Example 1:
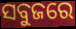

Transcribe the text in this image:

ସବୁଜରେ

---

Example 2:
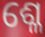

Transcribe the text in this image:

ଶ୍ଳେ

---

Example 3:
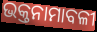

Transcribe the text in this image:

ଭକ୍ତନାମାବଳୀ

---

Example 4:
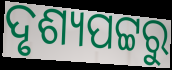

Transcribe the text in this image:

ଦୃଶ୍ୟପଟ୍ଟରୁ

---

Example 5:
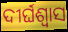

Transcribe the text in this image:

ଦୀର୍ଘଶ୍ବାସ